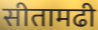
सीतामढी